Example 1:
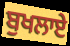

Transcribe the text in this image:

ਬੁਖਲਾਏ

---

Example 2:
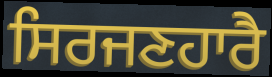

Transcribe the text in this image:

ਸਿਰਜਣਹਾਰੈ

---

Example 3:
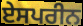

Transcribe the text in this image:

ਏਸਪਰੀਨ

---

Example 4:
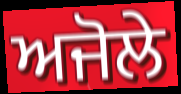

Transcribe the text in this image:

ਅਜੋਲੇ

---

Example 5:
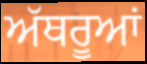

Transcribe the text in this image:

ਅੱਥਰੂਆਂ